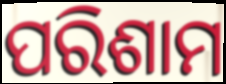
ପରିଶାମ